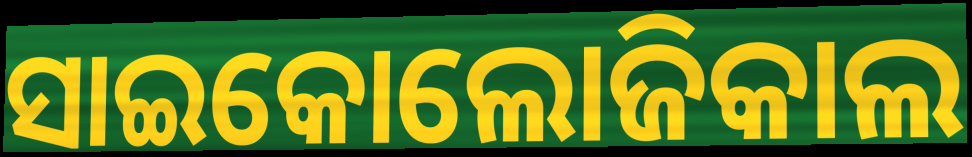
ସାଇକୋଲୋଜିକାଲ